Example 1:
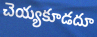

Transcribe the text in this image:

చెయ్యకూడదూ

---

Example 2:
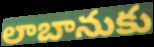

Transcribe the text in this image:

లాబానుకు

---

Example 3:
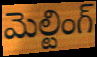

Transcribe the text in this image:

మెల్టింగ్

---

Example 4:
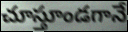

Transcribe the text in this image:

చూస్తూండగానే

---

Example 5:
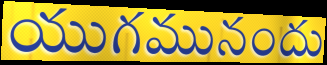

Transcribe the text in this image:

యుగమునందు